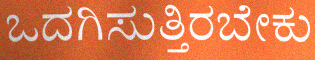
ಒದಗಿಸುತ್ತಿರಬೇಕು